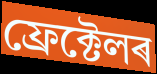
ফ্ৰেক্টেলৰ